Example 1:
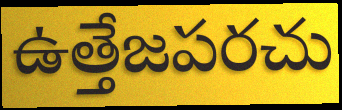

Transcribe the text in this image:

ఉత్తేజపరచు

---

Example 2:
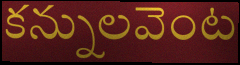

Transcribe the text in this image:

కన్నులవెంట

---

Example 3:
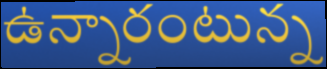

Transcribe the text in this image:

ఉన్నారంటున్న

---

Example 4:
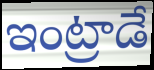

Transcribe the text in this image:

ఇంట్రాడే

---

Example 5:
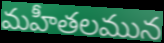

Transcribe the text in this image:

మహీతలమున